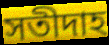
সতীদাহ